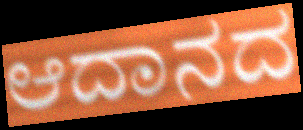
ಆದಾನದ